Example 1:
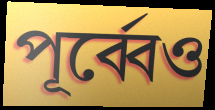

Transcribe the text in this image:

পূর্ব্বেও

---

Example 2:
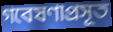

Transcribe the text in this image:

গবেষণাপ্রসূত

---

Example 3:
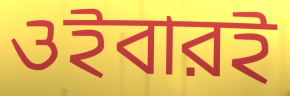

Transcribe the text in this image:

ওইবারই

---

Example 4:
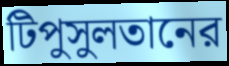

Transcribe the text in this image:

টিপুসুলতানের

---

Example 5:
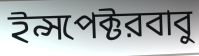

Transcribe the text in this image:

ইন্সপেক্টরবাবু